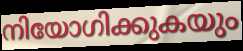
നിയോഗിക്കുകയും